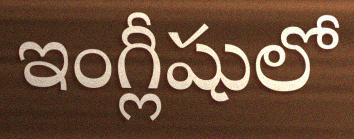
ఇంగ్లీషులో